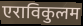
एराविकुलम